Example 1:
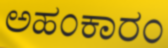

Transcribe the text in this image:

ಅಹಂಕಾರಂ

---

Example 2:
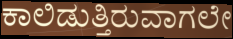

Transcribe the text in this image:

ಕಾಲಿಡುತ್ತಿರುವಾಗಲೇ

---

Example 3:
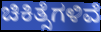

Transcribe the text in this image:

ಚಿಕಿತ್ಸೆಗಳಿವೆ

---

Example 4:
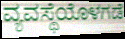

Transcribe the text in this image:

ವ್ಯವಸ್ಥೆಯೊಳಗಡೆ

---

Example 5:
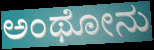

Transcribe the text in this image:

ಅಂಥೋನು